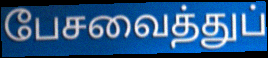
பேசவைத்துப்